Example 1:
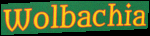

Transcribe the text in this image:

Wolbachia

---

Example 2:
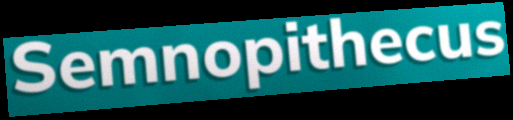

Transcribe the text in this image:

Semnopithecus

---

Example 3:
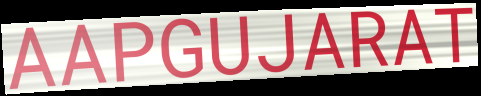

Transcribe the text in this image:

AAPGUJARAT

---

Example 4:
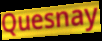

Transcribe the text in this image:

Quesnay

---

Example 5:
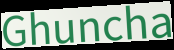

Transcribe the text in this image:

Ghuncha